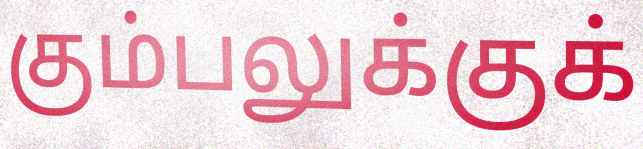
கும்பலுக்குக்